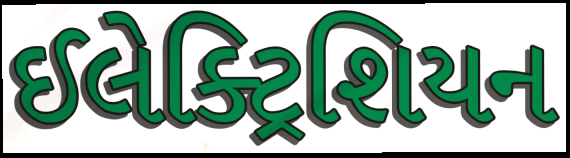
ઈલેક્ટ્રિશિયન